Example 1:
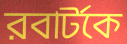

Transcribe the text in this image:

রবার্টকে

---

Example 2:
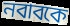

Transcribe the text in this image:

নবাবকে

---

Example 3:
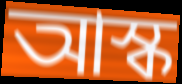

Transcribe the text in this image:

আস্ক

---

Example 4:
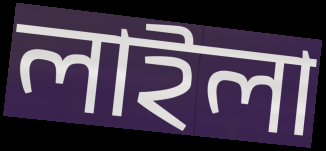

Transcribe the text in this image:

লাইলা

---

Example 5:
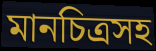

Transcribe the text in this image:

মানচিত্রসহ